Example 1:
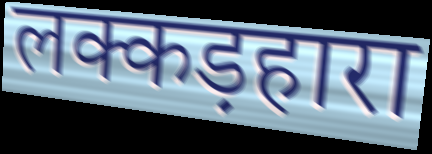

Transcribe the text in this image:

लक्कड़हारा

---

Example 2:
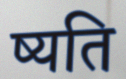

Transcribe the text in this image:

ष्यति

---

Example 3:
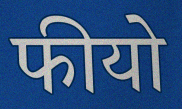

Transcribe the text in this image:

फीयो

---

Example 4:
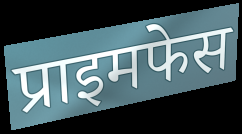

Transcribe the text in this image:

प्राइमफेस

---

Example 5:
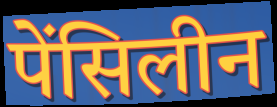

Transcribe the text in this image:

पेंसिलीन